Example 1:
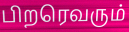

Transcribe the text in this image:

பிறரெவரும்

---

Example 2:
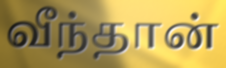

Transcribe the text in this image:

வீந்தான்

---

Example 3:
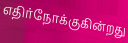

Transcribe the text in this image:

எதிர்நோக்குகின்றது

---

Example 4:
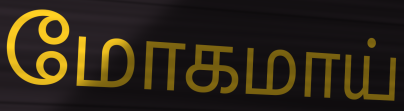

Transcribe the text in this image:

மோகமாய்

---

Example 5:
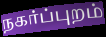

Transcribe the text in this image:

நகர்ப்புறம்